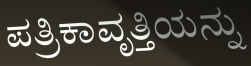
ಪತ್ರಿಕಾವೃತ್ತಿಯನ್ನು